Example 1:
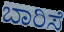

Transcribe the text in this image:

ಬಾರಿಸೆ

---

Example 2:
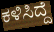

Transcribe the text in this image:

ಕಳಿಸಿದ್ದೆ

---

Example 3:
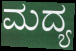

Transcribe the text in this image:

ಮದ್ಯ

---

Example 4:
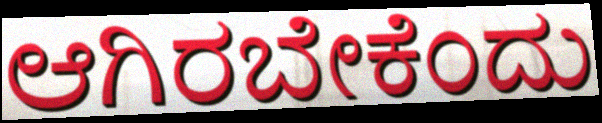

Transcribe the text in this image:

ಆಗಿರಬೇಕೆಂದು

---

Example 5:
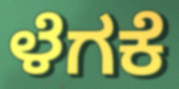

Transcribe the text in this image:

ಳೆಗಕೆ